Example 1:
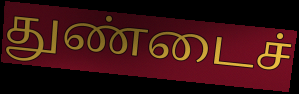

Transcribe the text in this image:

துண்டைச்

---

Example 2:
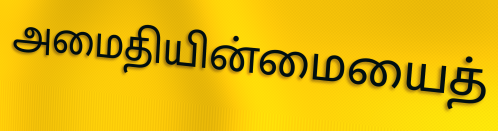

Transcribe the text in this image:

அமைதியின்மையைத்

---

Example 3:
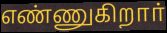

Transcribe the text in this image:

எண்ணுகிறார்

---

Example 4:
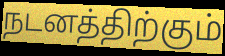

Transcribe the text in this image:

நடனத்திற்கும்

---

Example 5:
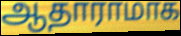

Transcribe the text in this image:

ஆதாராமாக